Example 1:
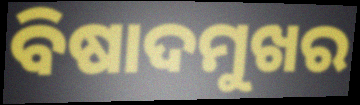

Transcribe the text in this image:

ବିଷାଦମୁଖର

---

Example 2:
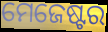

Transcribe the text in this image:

ମେଜେଷ୍ଟର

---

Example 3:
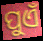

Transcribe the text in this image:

ପୁଏଁ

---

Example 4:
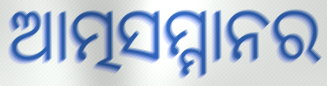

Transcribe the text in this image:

ଆତ୍ମସମ୍ମାନର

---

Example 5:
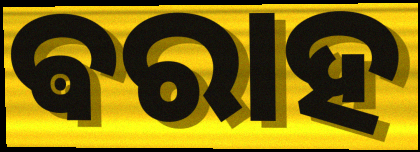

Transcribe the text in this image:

ଵରାହ